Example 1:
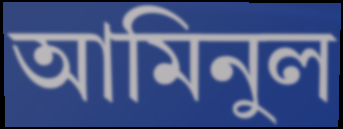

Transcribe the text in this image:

আমিনুল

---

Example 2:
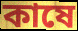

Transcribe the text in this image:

কাষে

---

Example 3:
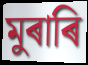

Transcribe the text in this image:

মুৰাৰি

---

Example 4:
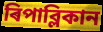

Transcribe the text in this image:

ৰিপাব্লিকান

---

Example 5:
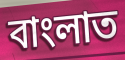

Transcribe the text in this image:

বাংলাত